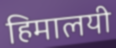
हिमालयी